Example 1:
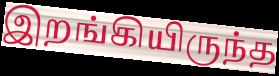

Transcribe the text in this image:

இறங்கியிருந்த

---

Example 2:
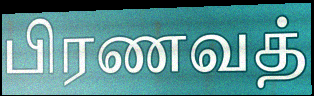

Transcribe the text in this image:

பிரணவத்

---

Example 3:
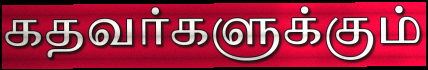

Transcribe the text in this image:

கதவர்களுக்கும்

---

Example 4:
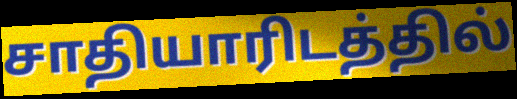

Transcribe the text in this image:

சாதியாரிடத்தில்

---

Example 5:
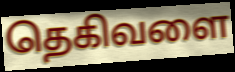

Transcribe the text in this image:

தெகிவளை